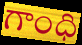
గాంధి